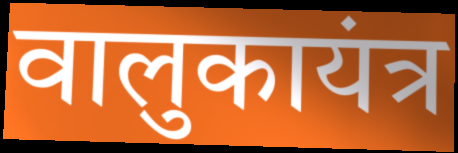
वालुकायंत्र